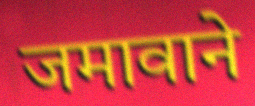
जमावाने